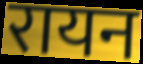
रायन